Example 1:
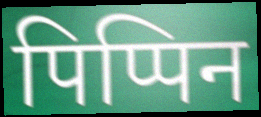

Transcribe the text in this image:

पिप्पिन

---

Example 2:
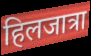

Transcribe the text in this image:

हिलजात्रा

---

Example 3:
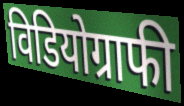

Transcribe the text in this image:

विडियोग्राफी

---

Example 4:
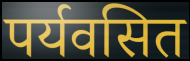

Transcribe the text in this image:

पर्यवसित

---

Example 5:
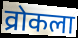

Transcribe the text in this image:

व्रोकला